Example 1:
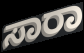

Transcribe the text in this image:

ಸಾರಾ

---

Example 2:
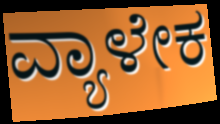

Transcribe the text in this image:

ವ್ಯಾಳೇಕ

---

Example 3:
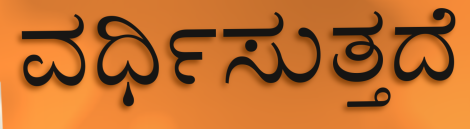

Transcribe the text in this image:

ವರ್ಧಿಸುತ್ತದೆ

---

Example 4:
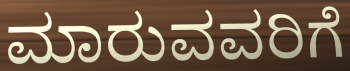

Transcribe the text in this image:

ಮಾರುವವರಿಗೆ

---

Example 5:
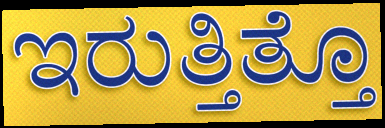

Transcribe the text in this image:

ಇರುತ್ತಿತ್ತೊ